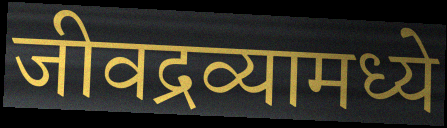
जीवद्रव्यामध्ये